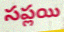
సప్లయి